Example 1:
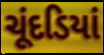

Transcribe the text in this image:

ચૂંદડિયાં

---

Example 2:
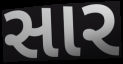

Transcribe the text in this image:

સાર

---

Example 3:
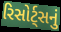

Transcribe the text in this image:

રિસોર્ટ્સનું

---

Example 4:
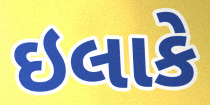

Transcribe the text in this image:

ઇલાકે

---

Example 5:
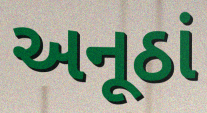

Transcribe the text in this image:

અનૂઠાં